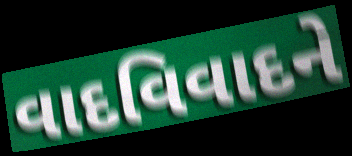
વાદવિવાદને